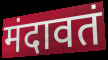
मंदावतं